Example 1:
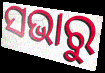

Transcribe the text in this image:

ସଭାରୁ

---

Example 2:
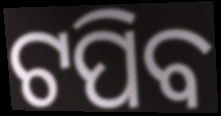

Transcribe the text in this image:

ଟପିବ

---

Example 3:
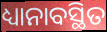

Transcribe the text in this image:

ଧ୍ୟାନାବସ୍ଥିତ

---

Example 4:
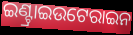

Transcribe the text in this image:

ଇଣ୍ଟ୍ରାଇଉଟେରାଇନ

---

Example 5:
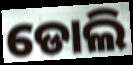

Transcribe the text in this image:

ଡୋଲି